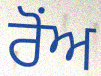
ਰੋਂਅ